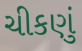
ચીકણું